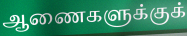
ஆணைகளுக்குக்